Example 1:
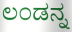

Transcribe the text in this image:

ಲಂಡನ್ನ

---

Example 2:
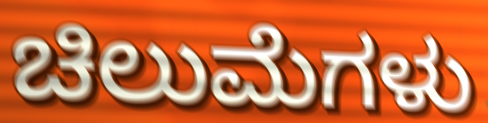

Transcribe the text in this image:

ಚಿಲುಮೆಗಳು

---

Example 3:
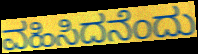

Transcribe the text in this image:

ವಹಿಸಿದನೆಂದು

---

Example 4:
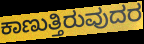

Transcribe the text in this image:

ಕಾಣುತ್ತಿರುವುದರ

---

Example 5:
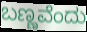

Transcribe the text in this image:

ಬಣ್ಣವೆಂದು